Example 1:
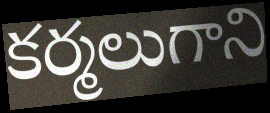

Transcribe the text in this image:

కర్మలుగాని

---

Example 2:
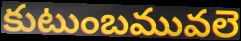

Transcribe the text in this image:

కుటుంబమువలె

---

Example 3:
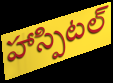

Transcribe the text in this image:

హాస్పిటల్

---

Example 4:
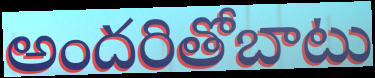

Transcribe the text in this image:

అందరితోబాటు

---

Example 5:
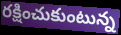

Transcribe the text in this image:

రక్షించుకుంటున్న